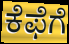
ಕೆಫೆಗೆ